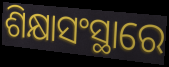
ଶିକ୍ଷାସଂସ୍ଥାରେ